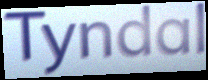
Tyndal